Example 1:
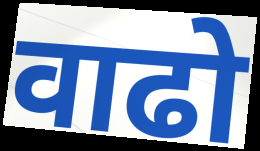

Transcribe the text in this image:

वाढो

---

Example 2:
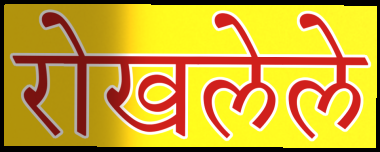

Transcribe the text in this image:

रोखलेले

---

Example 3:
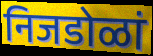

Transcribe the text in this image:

निजडोळां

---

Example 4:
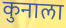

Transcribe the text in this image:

कुनाला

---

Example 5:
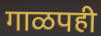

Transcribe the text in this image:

गाळपही